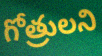
గోత్రులని